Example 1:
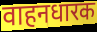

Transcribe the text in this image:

वाहनधारक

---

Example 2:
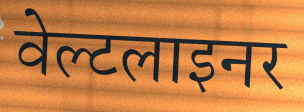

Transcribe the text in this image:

वेल्टलाइनर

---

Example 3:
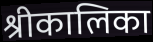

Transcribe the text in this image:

श्रीकालिका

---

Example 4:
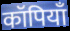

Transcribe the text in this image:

कॉपियाँ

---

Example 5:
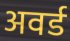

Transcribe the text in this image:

अवर्ड